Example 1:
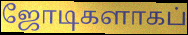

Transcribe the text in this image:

ஜோடிகளாகப்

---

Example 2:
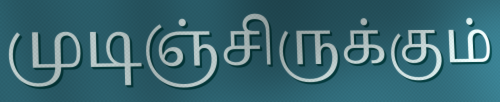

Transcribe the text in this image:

முடிஞ்சிருக்கும்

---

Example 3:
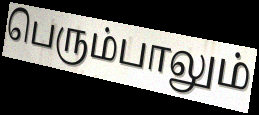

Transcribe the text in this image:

பெரும்பாலும்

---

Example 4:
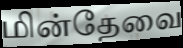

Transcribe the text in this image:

மின்தேவை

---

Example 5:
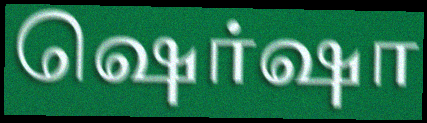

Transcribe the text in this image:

ஷெர்ஷா